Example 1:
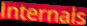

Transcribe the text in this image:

Internals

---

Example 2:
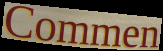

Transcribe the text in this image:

Commen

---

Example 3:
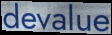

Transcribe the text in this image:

devalue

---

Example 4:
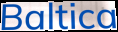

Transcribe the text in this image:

Baltica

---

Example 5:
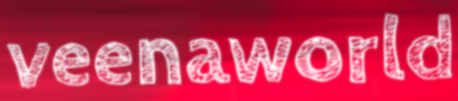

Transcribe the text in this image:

veenaworld